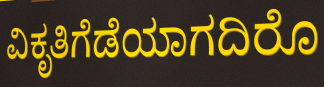
ವಿಕೃತಿಗೆಡೆಯಾಗದಿರೊ